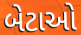
બેટાઓ